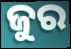
ଜୁର